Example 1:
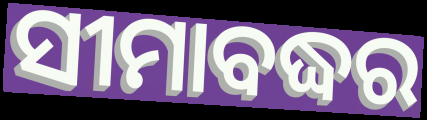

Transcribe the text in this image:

ସୀମାବଦ୍ଧର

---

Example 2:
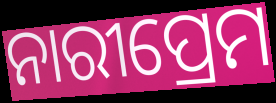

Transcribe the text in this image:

ନାରୀପ୍ରେମ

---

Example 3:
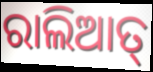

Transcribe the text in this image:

ରାଲିଆତ୍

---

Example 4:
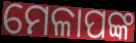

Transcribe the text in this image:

ମେଳାପଙ୍କ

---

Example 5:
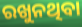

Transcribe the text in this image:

ରଖୁନଥିବା